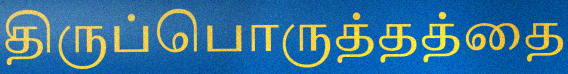
திருப்பொருத்தத்தை